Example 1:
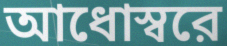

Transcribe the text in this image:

আধোস্বরে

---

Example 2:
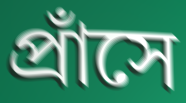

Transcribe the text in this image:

প্রাঁসে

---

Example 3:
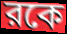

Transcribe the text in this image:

রকে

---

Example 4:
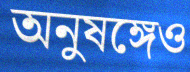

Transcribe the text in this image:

অনুষঙ্গেও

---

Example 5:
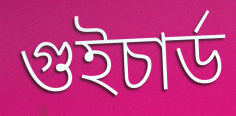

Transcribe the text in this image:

গুইচার্ড